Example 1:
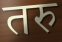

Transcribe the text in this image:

तरु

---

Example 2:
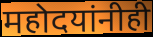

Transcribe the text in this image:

महोदयांनीही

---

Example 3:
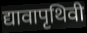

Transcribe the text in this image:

द्यावापृथिवी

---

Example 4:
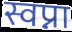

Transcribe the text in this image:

स्वप्ना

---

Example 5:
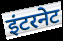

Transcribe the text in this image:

इंटरनेट